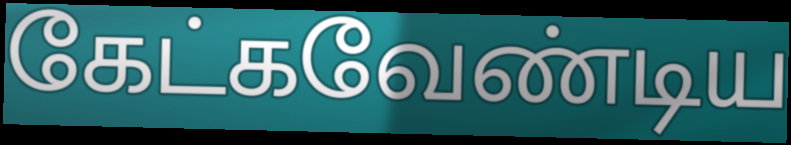
கேட்கவேண்டிய